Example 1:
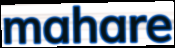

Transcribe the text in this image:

mahare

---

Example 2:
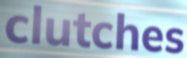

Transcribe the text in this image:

clutches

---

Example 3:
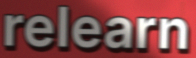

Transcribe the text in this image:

relearn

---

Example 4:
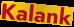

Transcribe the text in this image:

Kalank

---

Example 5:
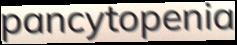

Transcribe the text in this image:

pancytopenia